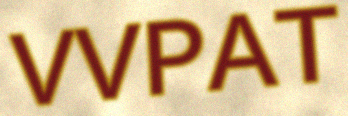
VVPAT